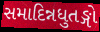
સમાદિન્નધુતઙ્ગો